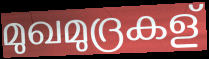
മുഖമുദ്രകള്